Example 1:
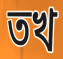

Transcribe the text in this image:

তখ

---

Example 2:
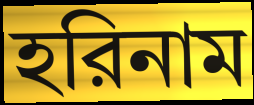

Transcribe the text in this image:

হরিনাম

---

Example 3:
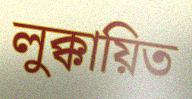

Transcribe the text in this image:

লুক্কায়িত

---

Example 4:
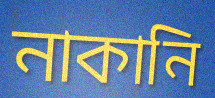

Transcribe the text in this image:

নাকানি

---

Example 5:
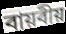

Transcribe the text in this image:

বায়বীয়